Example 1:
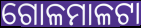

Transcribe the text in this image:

ଗୋଳମାଳଟା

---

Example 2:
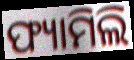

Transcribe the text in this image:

ଫ୍ୟାମିଲି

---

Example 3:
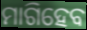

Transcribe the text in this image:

ମାଗିହେବ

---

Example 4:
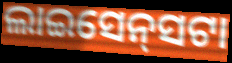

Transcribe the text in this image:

ଲାଇସେନ୍‍ସଟା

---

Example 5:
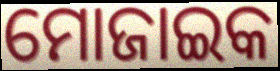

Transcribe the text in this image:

ମୋଜାଇକ